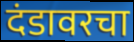
दंडावरचा